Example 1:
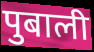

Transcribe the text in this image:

पुबाली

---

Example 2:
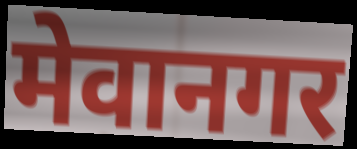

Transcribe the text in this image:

मेवानगर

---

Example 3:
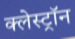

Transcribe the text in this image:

क्लेस्ट्रॉन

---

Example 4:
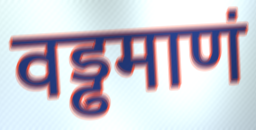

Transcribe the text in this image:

वड्ढमाणं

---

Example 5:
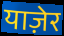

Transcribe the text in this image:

याज़ेर